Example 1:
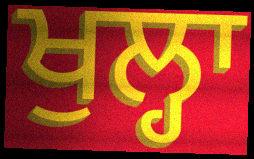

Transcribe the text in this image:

ਖੁਲ੍ਹਾ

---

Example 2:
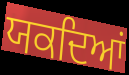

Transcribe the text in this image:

ਯਕਦਿਆਂ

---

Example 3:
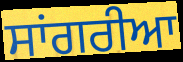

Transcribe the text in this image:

ਸਾਂਗਰੀਆ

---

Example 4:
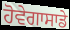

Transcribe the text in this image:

ਹੋਵੇਗਾਸਾਡੇ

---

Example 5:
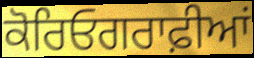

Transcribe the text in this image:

ਕੋਰਿਓਗਰਾਫ਼ੀਆਂ